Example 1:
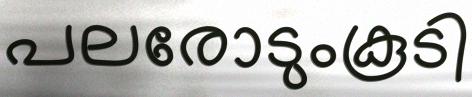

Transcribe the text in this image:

പലരോടുംകൂടി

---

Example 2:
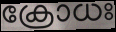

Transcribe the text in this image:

ക്രോധഃ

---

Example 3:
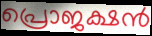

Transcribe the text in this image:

പ്രൊജക്ഷൻ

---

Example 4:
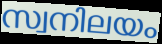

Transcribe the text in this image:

സ്വനിലയം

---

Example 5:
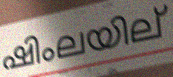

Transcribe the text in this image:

ഷിംലയില്